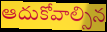
ఆదుకోవాల్సిన